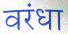
वरंधा